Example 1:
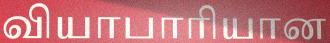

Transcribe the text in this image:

வியாபாரியான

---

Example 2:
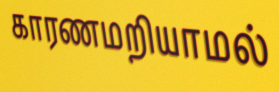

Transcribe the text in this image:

காரணமறியாமல்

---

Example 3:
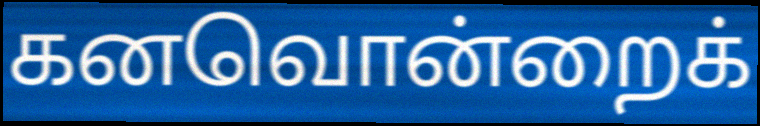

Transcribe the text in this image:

கனவொன்றைக்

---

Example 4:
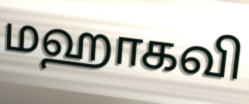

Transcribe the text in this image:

மஹாகவி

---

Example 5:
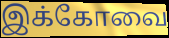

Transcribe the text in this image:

இக்கோவை